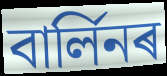
বাৰ্লিনৰ